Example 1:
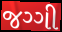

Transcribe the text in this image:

જગ્ગી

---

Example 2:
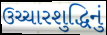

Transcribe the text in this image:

ઉચ્ચારશુદ્ધિનું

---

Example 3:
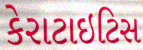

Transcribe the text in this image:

કેરાટાઇટિસ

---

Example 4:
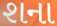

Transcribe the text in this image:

શના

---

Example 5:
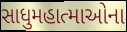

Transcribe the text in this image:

સાધુમહાત્માઓના